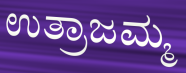
ಉತ್ರಾಜಮ್ಮ